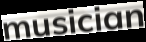
musician